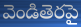
వెండితెరపై